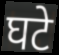
घटे